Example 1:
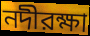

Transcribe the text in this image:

নদীরক্ষা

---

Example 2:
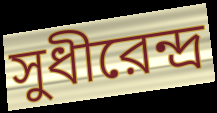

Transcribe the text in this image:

সুধীরেন্দ্র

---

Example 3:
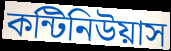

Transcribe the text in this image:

কন্টিনিউয়াস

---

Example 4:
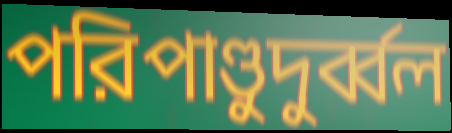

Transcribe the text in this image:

পরিপাণ্ডুদুর্ব্বল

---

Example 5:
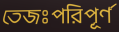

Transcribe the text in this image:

তেজঃপরিপূর্ণ